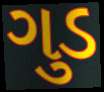
ગુડ